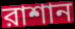
রাশান